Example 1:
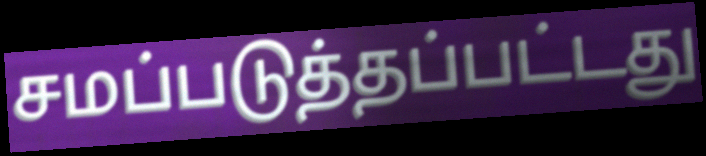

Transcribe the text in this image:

சமப்படுத்தப்பட்டது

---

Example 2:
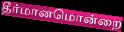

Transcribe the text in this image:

தீர்மானமொன்றை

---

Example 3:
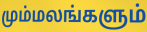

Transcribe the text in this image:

மும்மலங்களும்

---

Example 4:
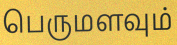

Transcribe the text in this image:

பெருமளவும்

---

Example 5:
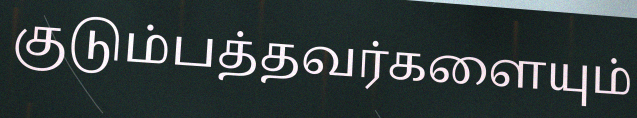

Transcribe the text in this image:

குடும்பத்தவர்களையும்